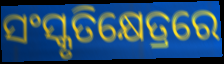
ସଂସ୍କୃତିକ୍ଷେତ୍ରରେ